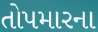
તોપમારના